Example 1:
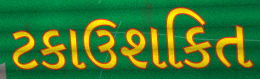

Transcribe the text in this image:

ટકાઉશકિત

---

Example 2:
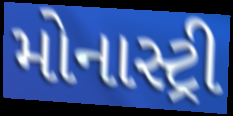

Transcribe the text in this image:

મોનાસ્ટ્રી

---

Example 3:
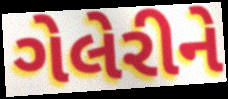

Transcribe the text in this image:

ગેલેરીને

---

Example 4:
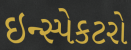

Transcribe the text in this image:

ઇન્સ્પેકટરો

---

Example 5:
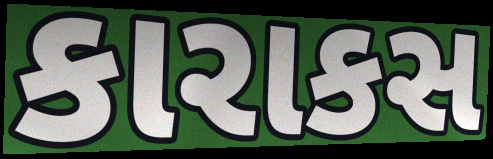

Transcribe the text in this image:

કારાકસ